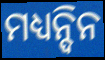
ମଧ୍ୟନ୍ଦିନ